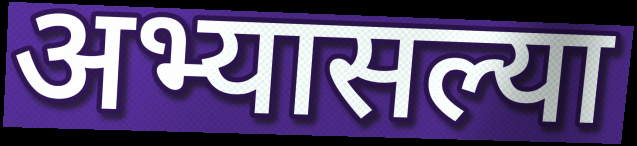
अभ्यासल्या